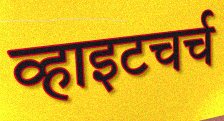
व्हाइटचर्च